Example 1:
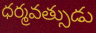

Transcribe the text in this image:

ధర్మవత్సుడు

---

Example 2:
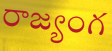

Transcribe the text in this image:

రాజ్యంగ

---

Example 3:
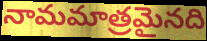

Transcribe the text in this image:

నామమాత్రమైనది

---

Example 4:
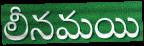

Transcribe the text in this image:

లీనమయి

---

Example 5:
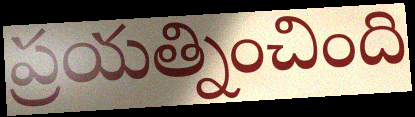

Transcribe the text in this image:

ప్రయత్నించింది